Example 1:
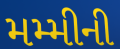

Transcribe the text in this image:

મમ્મીની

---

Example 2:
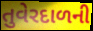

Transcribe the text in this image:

તુવેરદાળની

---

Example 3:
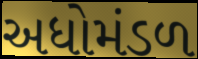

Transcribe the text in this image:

અધોમંડળ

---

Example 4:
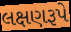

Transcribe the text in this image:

લક્ષણરૂપે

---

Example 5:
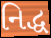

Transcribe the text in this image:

નિદ્ધ